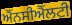
ਐੱਨਸੀਐੱਲਟੀ